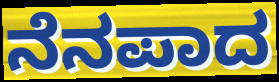
ನೆನಪಾದ